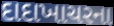
દાદાખાચરના